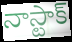
నాస్టాక్